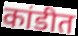
कांडीत